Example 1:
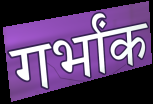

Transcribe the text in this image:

गर्भांक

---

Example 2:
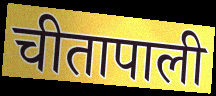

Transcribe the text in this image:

चीतापाली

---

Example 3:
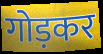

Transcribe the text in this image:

गोड़कर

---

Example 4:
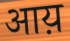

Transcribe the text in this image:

आय़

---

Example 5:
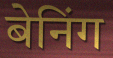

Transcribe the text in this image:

बेनिंग